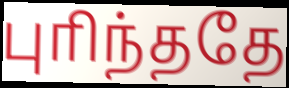
புரிந்ததே